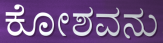
ಕೋಶವನು